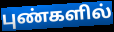
புண்களில்